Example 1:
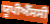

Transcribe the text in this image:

ਯੂਪੀਐੱਸਸੀ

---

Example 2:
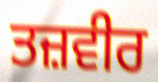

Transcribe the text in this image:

ਤਜ਼ਵੀਰ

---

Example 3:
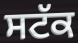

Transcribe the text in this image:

ਸਟੱਕ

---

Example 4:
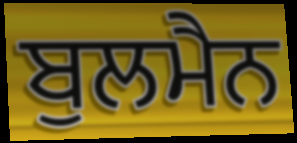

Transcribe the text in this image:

ਬੁਲਮੈਨ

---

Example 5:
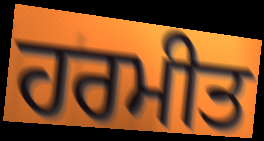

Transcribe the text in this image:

ਹਰਮੀਤ